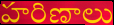
హరిణాలు